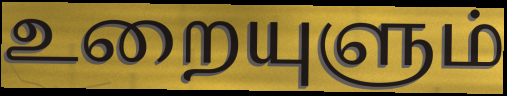
உறையுளும்